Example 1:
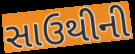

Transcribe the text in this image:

સાઉથીની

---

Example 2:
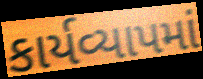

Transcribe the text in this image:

કાર્યવ્યાપમાં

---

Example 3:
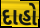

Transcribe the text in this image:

દાહો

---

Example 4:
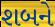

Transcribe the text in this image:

શબને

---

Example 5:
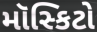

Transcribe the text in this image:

મૉસ્કિટો